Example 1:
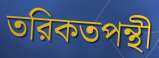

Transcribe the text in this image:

তরিকতপন্থী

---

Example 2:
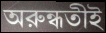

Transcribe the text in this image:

অরুন্ধতীই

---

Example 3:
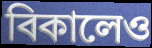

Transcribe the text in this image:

বিকালেও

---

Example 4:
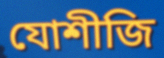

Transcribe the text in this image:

যোশীজি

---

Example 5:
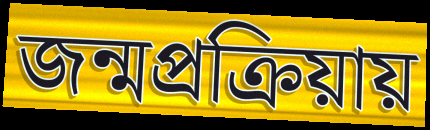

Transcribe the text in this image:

জন্মপ্রক্রিয়ায়